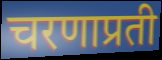
चरणाप्रती